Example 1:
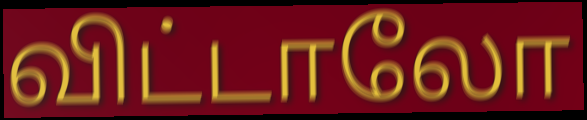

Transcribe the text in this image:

விட்டாலோ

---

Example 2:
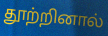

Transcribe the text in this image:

தூற்றினால்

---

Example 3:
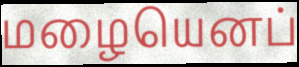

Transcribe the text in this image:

மழையெனப்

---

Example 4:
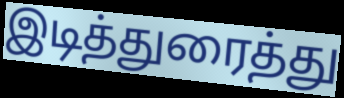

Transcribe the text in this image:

இடித்துரைத்து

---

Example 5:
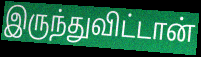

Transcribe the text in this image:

இருந்துவிட்டான்